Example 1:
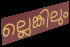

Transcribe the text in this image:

ല്ലെങ്കിലും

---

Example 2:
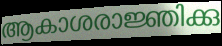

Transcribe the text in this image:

ആകാശരാജ്ഞിക്കു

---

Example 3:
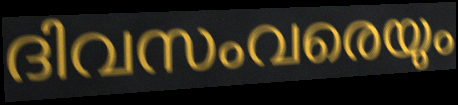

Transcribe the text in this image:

ദിവസംവരെയും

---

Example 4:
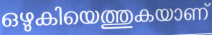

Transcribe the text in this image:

ഒഴുകിയെത്തുകയാണ്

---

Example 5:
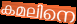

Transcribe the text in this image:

കമലിനെ